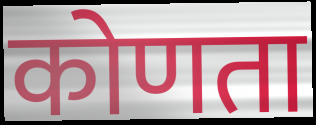
कोणता